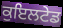
ਕੁਇਲਟੇਡ